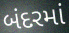
બંદરમાં